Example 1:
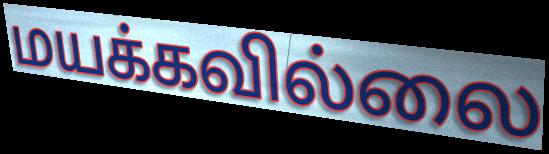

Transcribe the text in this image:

மயக்கவில்லை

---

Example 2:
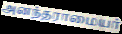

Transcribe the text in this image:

அனந்தராமையர்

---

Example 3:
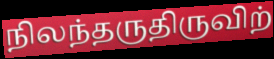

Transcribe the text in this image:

நிலந்தருதிருவிற்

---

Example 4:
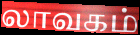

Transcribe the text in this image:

லாவகம்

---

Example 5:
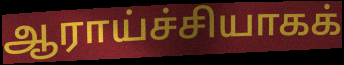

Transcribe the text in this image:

ஆராய்ச்சியாகக்